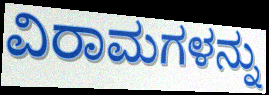
ವಿರಾಮಗಳನ್ನು